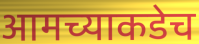
आमच्याकडेच